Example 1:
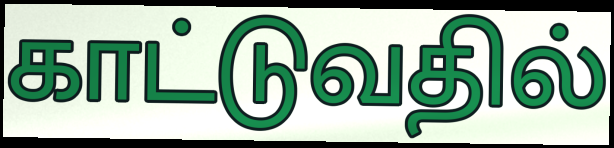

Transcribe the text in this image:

காட்டுவதில்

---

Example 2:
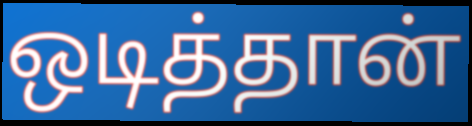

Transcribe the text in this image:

ஒடித்தான்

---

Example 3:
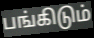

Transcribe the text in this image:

பங்கிடும்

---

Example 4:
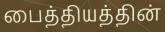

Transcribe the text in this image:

பைத்தியத்தின்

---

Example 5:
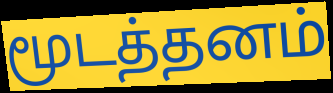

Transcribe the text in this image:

மூடத்தனம்